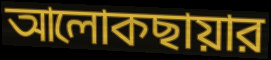
আলোকছায়ার